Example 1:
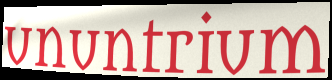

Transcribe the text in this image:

ununtrium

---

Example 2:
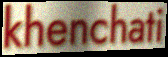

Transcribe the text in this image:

khenchati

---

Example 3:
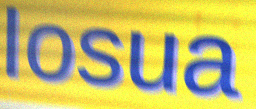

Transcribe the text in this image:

Iosua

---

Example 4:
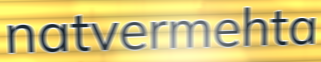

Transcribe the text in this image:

natvermehta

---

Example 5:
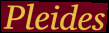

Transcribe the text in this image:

Pleides